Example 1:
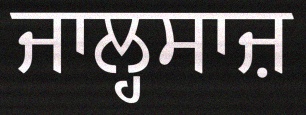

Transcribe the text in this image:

ਜਾਲ੍ਹਸਾਜ਼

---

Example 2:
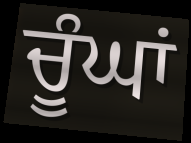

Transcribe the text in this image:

ਚੂੰਘਾਂ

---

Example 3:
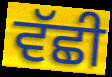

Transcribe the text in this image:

ਵੱਛੀ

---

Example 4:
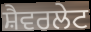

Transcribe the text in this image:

ਸ਼ੈਵਰਲੇਟ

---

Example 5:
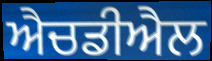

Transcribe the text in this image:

ਐਚਡੀਐਲ